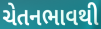
ચેતનભાવથી